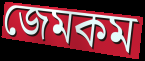
জেমকম